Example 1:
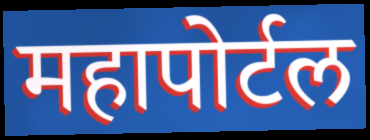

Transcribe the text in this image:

महापोर्टल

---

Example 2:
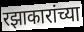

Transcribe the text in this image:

रझाकारांच्या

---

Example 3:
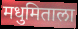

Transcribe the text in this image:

मधुमिताला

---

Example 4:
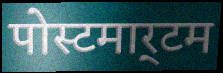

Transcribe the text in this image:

पोस्टमार्टम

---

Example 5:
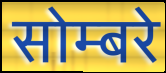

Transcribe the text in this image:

सोम्बरे